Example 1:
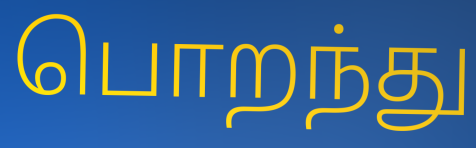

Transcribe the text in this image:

பொறந்து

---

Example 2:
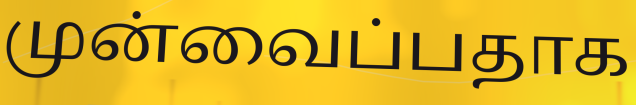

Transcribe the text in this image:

முன்வைப்பதாக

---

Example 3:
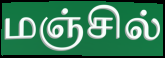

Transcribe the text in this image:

மஞ்சில்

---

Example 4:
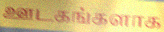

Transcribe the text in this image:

ஊடகங்களாக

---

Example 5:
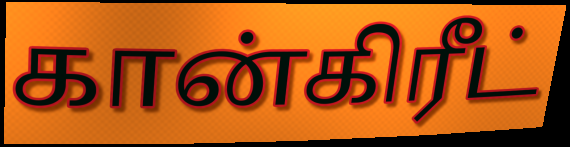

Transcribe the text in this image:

கான்கிரீட்